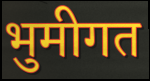
भुमीगत